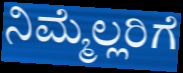
ನಿಮ್ಮೆಲ್ಲರಿಗೆ